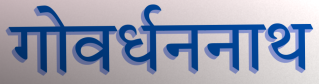
गोवर्धननाथ